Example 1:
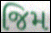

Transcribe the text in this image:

જિમ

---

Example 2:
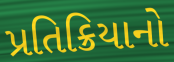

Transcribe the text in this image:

પ્રતિક્રિયાનો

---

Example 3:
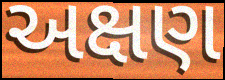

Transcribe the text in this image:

અક્ષણ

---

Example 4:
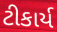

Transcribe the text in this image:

ટીકાર્ય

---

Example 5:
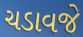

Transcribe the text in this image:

ચડાવજે